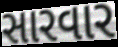
સારવાર